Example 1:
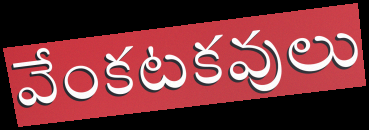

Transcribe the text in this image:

వేంకటకవులు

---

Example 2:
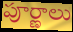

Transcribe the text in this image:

పూర్ణాలు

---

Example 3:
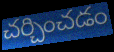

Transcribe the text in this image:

చర్చించడం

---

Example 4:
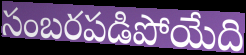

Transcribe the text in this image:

సంబరపడిపోయేది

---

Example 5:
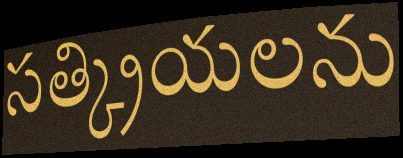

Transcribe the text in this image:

సత్క్రియలను